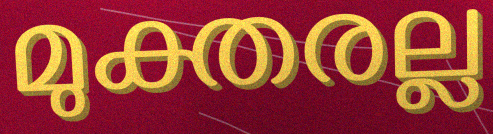
മുക്തരല്ല